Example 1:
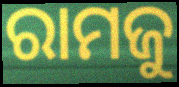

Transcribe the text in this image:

ରାମଜୁ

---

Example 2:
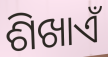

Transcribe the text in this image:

ଶିଖାଏଁ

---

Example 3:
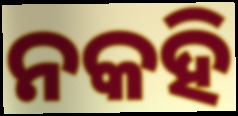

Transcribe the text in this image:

ନକହି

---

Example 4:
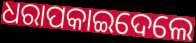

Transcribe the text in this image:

ଧରାପକାଇଦେଲେ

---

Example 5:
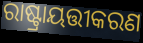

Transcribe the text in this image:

ରାଷ୍ଟ୍ରାୟତ୍ତୀକରଣ